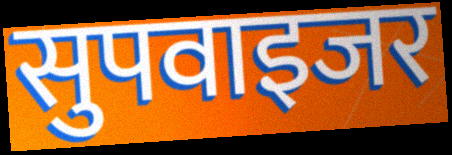
सुपवाइजर